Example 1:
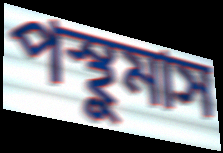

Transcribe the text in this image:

পস্থুমাস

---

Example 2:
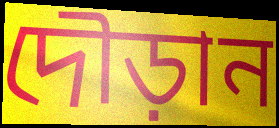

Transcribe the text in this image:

দৌড়ান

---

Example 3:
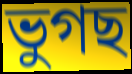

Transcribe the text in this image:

ভুগছ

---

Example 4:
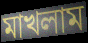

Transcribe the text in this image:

মাখলাম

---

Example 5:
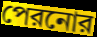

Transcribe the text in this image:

পেরনোর